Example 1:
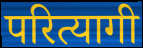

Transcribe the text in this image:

परित्यागी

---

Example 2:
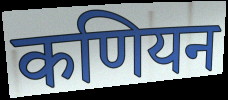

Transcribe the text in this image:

कणियन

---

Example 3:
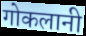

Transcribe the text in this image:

गोकलानी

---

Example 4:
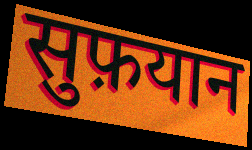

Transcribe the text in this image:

सुफ़यान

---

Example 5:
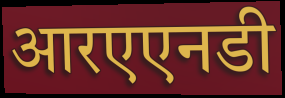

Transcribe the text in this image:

आरएएनडी